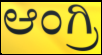
ಆಂಗ್ರಿ